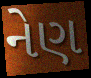
નેણ